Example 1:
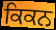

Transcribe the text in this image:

ਕਿਕਨ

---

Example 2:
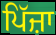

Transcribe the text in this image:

ਪਿੱਜ਼ਾ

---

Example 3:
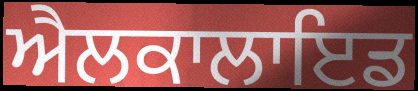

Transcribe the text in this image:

ਐਲਕਾਲਾਇਡ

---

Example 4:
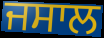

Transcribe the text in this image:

ਜਸਾਲ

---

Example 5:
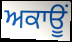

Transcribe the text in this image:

ਅਕਾਊਂ